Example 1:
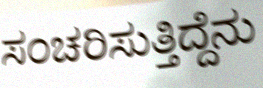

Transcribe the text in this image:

ಸಂಚರಿಸುತ್ತಿದ್ದೆನು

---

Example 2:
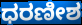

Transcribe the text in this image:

ಧರಣೀಶ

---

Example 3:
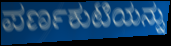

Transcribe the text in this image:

ಪರ್ಣಕುಟಿಯನ್ನು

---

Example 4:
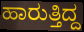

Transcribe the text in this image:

ಹಾರುತ್ತಿದ್ದ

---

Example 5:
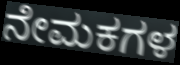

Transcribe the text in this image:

ನೇಮಕಗಳ